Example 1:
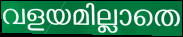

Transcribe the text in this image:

വളയമില്ലാതെ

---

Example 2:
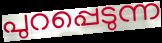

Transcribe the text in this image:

പുറപ്പെടുന്ന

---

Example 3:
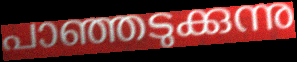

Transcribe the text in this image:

പാഞ്ഞടുക്കുന്നു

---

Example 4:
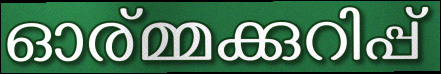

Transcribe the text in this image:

ഓര്മ്മക്കുറിപ്പ്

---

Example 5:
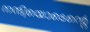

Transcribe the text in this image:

നന്ദിയൊടെന്റെ